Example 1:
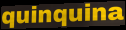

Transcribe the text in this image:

quinquina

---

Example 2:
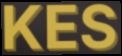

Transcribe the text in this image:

KES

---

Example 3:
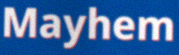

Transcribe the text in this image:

Mayhem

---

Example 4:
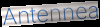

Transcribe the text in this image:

Antennea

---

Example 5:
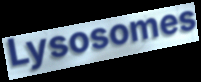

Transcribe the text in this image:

Lysosomes